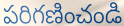
పరిగణించండి